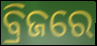
ବ୍ରିଜରେ